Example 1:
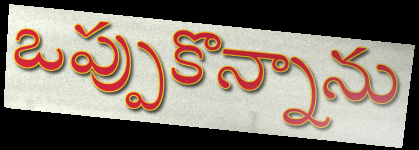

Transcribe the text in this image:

ఒప్పుకొన్నాను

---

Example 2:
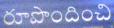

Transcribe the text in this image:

రూపొందించి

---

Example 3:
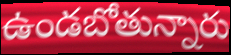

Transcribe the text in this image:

ఉండబోతున్నారు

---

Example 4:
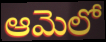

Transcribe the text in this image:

ఆమెలో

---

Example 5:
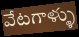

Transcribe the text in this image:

వేటగాళ్ళు